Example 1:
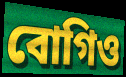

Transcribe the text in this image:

বোগিও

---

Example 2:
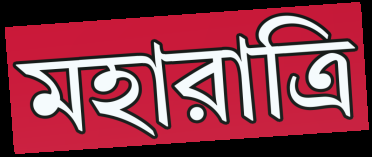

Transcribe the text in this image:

মহারাত্রি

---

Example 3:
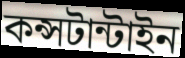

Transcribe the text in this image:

কন্সটান্টাইন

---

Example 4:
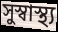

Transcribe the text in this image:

সুস্বাস্থ্য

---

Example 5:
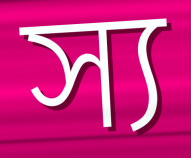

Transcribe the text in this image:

স্য